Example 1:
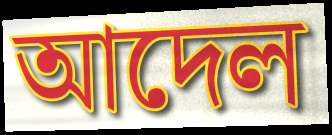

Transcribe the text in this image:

আদেল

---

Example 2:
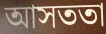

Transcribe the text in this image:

আসততা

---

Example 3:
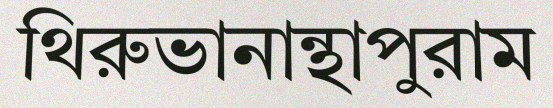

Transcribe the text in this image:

থিরুভানান্থাপুরাম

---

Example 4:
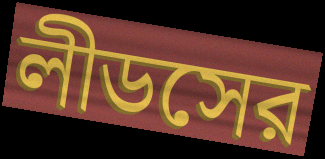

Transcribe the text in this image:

লীডসের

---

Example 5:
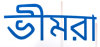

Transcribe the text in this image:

ভীমরা